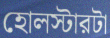
হোলস্টারটা